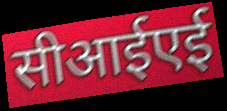
सीआईएई